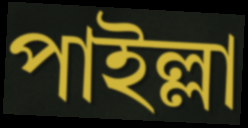
পাইল্লা